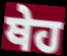
ਥੇਹ